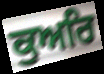
ਕੁਅਰਿ